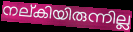
നല്കിയിരുന്നില്ല